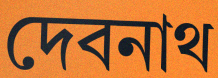
দেবনাথ